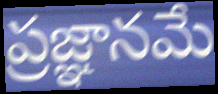
ప్రజ్ఞానమే